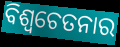
ବିଶ୍ଵଚେତନାର